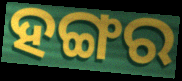
ହଙ୍ଗର